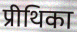
प्रीथिका